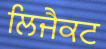
ਲਿਜੈਕਟ